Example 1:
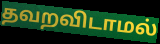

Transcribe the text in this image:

தவறவிடாமல்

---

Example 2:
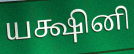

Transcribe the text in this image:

யக்ஷினி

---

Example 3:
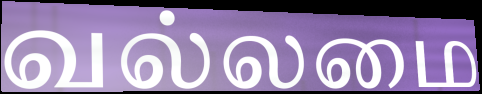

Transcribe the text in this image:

வல்லமை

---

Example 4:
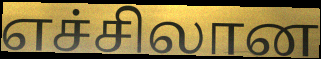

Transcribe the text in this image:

எச்சிலான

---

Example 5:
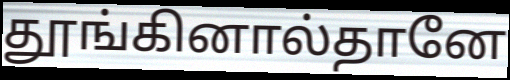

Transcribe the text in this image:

தூங்கினால்தானே